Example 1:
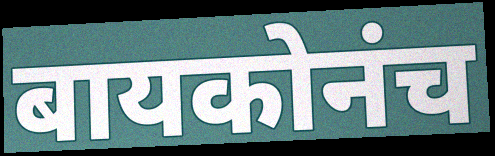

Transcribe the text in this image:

बायकोनंच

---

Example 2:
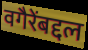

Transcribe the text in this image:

वगैरेंबद्दल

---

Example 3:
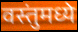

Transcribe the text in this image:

वस्तुंमध्ये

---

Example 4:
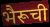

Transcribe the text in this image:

भैरूची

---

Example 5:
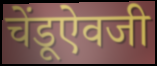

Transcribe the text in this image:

चेंडूऐवजी